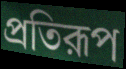
প্রতিরূপ